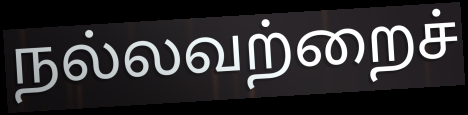
நல்லவற்றைச்